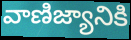
వాణిజ్యానికి